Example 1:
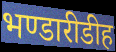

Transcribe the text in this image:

भण्डारीडीह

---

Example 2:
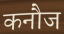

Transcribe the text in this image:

कनौज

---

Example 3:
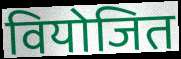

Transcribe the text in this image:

वियोजित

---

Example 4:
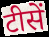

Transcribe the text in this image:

टीसें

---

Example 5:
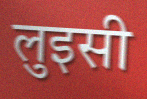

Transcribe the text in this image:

लुइसी